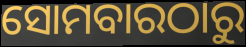
ସୋମବାରଠାରୁ